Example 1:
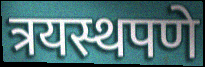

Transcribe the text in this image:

त्रयस्थपणे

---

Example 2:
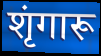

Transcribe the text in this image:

शृंगारू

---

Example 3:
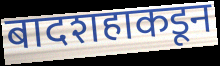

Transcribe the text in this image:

बादशहाकडून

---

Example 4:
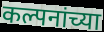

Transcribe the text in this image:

कल्पनांच्या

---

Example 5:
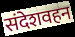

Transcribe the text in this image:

संदेशवहन